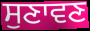
ਸੁਣਾਵਣ